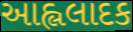
આહ્લલાદક